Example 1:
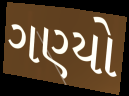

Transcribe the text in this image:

ગણ્યો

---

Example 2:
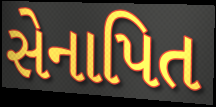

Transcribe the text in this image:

સેનાપિત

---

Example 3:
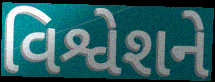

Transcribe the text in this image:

વિશ્વેશને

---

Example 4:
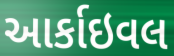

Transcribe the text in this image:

આર્કાઇવલ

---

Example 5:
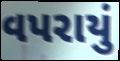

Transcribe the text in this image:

વપરાયું